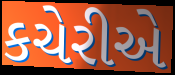
કચેરીએ